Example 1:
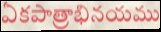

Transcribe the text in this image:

ఏకపాత్రాభినయము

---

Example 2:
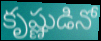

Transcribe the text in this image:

కృష్ణుడినో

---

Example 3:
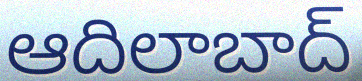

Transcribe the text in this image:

ఆదిలాబాద్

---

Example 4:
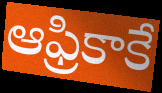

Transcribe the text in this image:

ఆఫ్రికాకే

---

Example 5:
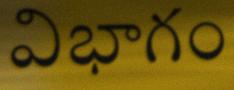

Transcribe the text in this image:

విభాగం